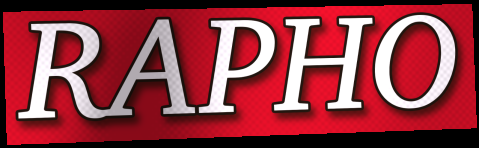
RAPHO